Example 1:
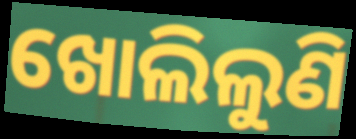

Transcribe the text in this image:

ଖୋଲିଲୁଣି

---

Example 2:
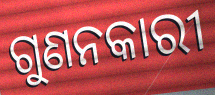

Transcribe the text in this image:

ଗୁଣନକାରୀ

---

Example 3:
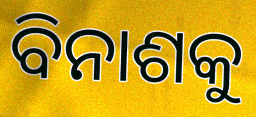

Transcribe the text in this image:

ବିନାଶକୁ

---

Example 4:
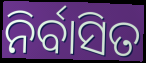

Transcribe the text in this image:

ନିର୍ବାସିତ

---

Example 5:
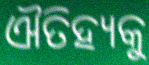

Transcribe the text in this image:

ଐତିହ୍ୟକୁ